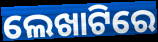
ଲେଖାଟିରେ